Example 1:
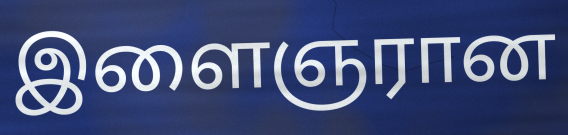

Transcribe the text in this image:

இளைஞரான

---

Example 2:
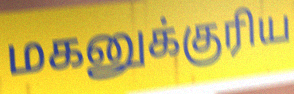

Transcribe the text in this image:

மகனுக்குரிய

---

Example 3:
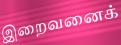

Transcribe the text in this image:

இறைவனைக்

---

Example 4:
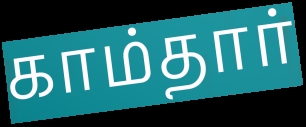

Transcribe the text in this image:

காம்தார்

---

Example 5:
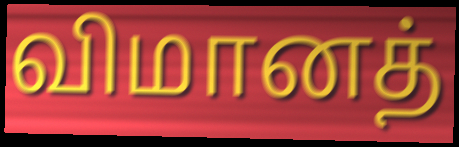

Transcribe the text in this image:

விமானத்